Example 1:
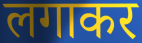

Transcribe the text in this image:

लगाकर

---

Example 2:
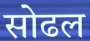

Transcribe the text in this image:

सोढल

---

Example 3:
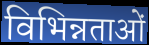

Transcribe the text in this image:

विभिन्नताओं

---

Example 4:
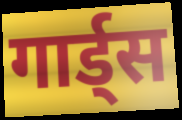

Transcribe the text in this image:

गार्ड्स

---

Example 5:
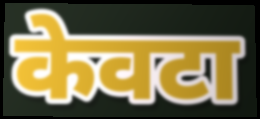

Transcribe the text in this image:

केवटा